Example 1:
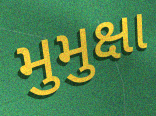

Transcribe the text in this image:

મુમુક્ષા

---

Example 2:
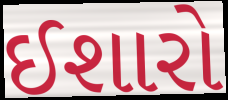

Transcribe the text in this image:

ઈશારો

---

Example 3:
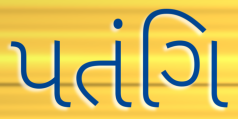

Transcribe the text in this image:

પતંગિ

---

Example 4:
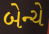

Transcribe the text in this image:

બેન્ચે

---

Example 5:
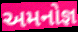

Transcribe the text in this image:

અમનોજ્ઞ